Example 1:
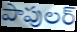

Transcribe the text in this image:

పాపులర్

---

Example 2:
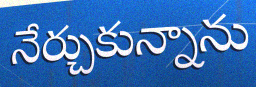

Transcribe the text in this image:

నేర్చుకున్నాను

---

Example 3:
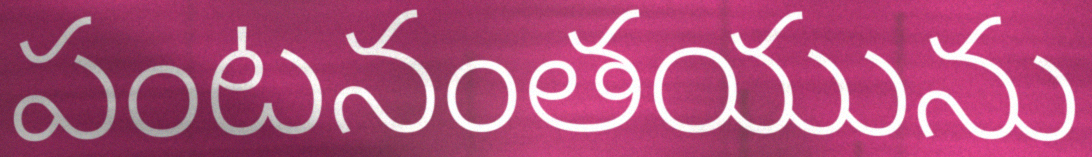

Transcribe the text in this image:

పంటనంతయును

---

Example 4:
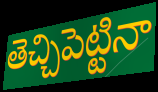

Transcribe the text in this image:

తెచ్చిపెట్టినా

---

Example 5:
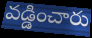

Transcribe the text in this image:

వడ్డించారు